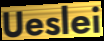
Ueslei